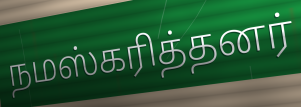
நமஸ்கரித்தனர்